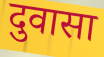
दुवासा